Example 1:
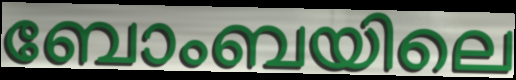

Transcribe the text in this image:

ബോംബയിലെ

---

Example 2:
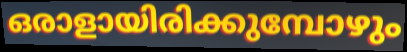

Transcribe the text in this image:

ഒരാളായിരിക്കുമ്പോഴും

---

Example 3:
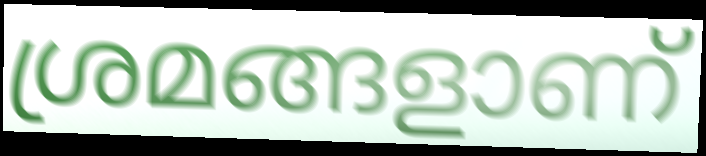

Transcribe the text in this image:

ശ്രമങ്ങളാണ്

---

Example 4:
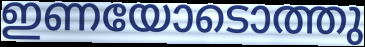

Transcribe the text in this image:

ഇണയോടൊത്തു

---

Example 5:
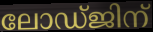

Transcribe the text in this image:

ലോഡ്ജിന്